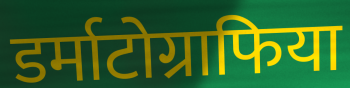
डर्माटोग्राफिया